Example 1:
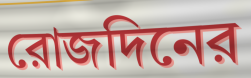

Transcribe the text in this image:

রোজদিনের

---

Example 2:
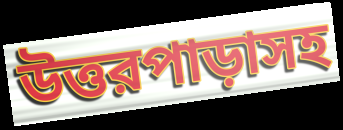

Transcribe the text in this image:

উত্তরপাড়াসহ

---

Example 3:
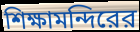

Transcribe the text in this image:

শিক্ষামন্দিরের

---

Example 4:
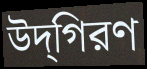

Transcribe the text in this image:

উদ্‌গিরণ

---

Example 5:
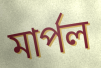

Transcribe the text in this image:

মার্পল